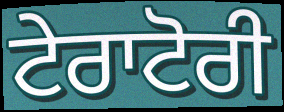
ਟੇਰਾਟੋਰੀ